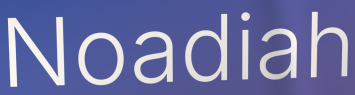
Noadiah